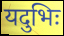
यदुभिः